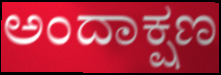
ಅಂದಾಕ್ಷಣ